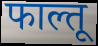
फाल्तू